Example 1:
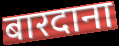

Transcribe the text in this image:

बारदाना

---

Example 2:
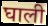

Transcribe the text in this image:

घाली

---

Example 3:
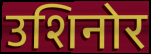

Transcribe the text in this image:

उशिनोर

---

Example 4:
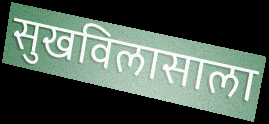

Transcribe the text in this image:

सुखविलासाला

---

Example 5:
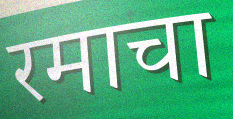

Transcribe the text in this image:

रमाचा